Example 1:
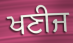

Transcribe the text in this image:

ਖਣੀਜ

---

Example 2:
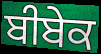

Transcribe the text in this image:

ਬੀਬੇਕ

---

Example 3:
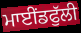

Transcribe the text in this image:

ਮਾਈਂਡਫੁੱਲੀ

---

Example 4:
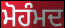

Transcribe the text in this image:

ਮੋਹੰਮਦ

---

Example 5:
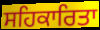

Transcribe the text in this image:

ਸਹਿਕਾਰਿਤਾ